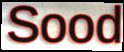
Sood